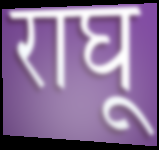
राघू